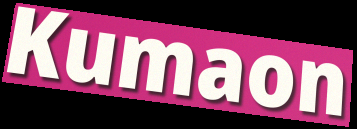
Kumaon